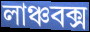
লাঞ্চবক্স